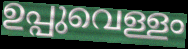
ഉപ്പുവെള്ളം